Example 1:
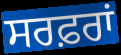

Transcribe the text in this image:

ਸਰਫ਼ਰਾਂ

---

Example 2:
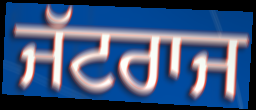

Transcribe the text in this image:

ਜੱਟਰਾਜ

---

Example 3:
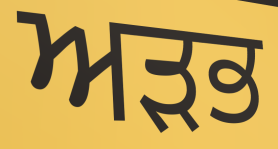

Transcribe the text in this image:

ਅੜਭ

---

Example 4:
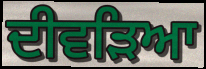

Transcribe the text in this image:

ਦੀਵੜਿਆ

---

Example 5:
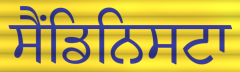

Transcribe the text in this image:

ਸੈਂਡਿਨਿਸਟਾ